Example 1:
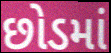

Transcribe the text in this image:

છોડમાં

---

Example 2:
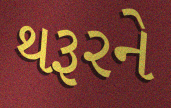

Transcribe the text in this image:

થરૂરને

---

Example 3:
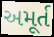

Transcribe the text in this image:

અમૂર્ત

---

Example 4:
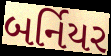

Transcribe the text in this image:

બર્નિયર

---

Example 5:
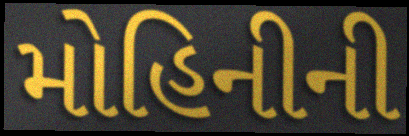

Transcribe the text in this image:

મોહિનીની